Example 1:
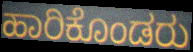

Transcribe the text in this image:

ಹಾರಿಕೊಂಡರು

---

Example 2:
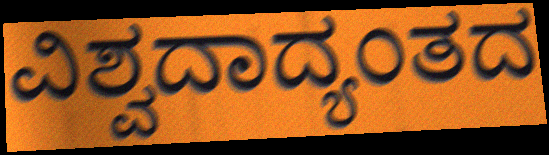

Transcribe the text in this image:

ವಿಶ್ವದಾದ್ಯಂತದ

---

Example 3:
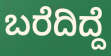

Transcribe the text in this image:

ಬರೆದಿದ್ದೆ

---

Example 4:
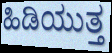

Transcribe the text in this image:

ಹಿಡಿಯುತ್ತ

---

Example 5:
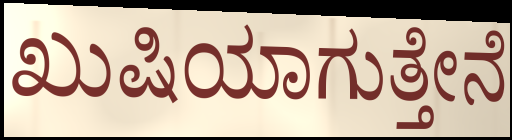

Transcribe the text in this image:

ಖುಷಿಯಾಗುತ್ತೇನೆ